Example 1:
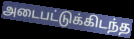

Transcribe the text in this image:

அடைபட்டுக்கிடந்த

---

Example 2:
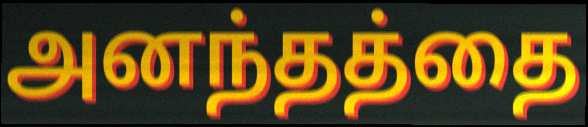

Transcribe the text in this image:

அனந்தத்தை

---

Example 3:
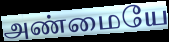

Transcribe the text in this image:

அண்மையே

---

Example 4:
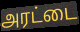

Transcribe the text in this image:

அரட்டை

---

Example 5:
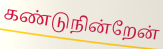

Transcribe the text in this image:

கண்டுநின்றேன்